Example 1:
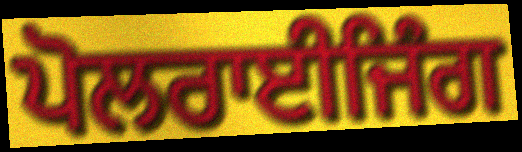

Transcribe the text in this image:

ਪੋਲਰਾਈਜਿੰਗ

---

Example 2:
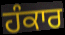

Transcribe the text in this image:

ਹੰਕਾਰ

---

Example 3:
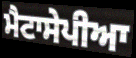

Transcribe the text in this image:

ਮੈਟਾਸੇਪੀਆ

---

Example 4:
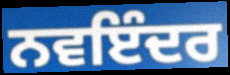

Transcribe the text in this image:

ਨਵਇੰਦਰ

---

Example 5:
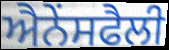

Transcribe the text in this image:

ਐਨੇਂਸਫੈਲੀ